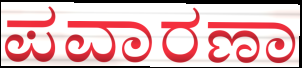
ಪವಾರಣಾ